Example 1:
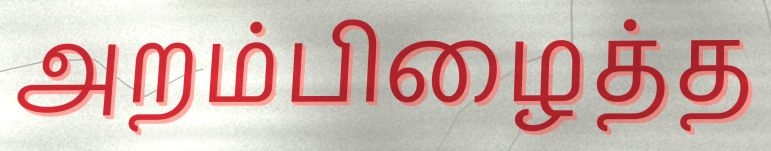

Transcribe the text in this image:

அறம்பிழைத்த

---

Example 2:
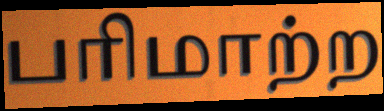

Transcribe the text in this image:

பரிமாற்ற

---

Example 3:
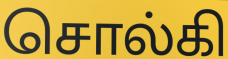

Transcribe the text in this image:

சொல்கி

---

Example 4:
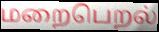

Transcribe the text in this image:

மறைபெறல்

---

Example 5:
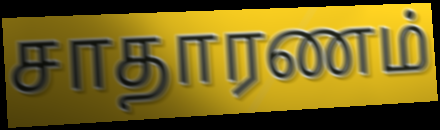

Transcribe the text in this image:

சாதாரணம்